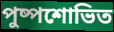
পুষ্পশোভিত